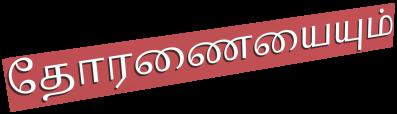
தோரணையையும்